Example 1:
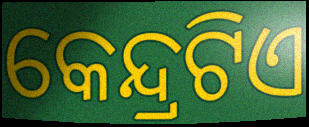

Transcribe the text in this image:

କେନ୍ଦ୍ରଟିଏ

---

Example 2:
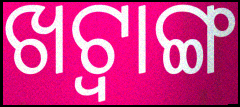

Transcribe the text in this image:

ଖଟ୍ଵାଙ୍ଗ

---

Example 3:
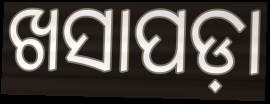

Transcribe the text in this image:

ଖସାପଡ଼ା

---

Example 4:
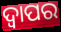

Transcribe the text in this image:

ଦ୍ୱାପର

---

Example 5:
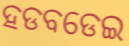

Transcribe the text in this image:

ହଡବଡେଇ